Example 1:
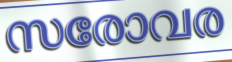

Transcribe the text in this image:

സരോവര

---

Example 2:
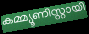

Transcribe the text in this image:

കമ്മ്യൂണിസ്റ്റായി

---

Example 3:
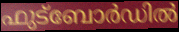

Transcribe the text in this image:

ഫുട്ബോർഡിൽ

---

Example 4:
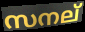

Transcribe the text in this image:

സനല്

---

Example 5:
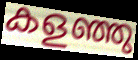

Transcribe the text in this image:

കളഞ്ഞു